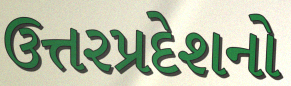
ઉત્તરપ્રદેશનો